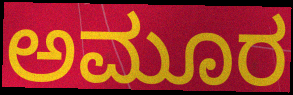
ಅಮೂರ